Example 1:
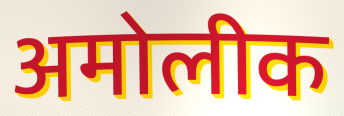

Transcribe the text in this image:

अमोलीक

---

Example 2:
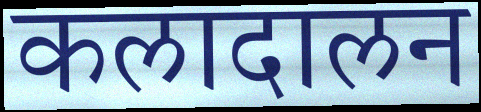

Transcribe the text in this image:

कलादालन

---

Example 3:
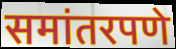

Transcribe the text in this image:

समांतरपणे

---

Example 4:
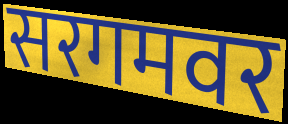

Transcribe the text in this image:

सरगमवर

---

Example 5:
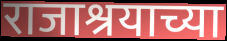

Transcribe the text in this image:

राजाश्रयाच्या